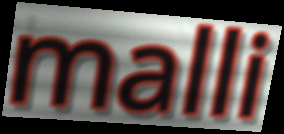
malli